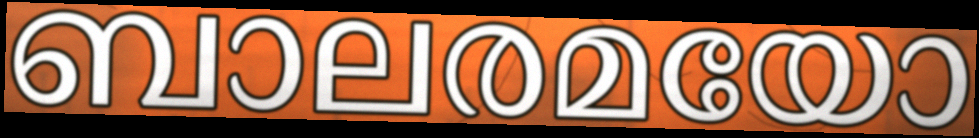
ബാലരമയോ